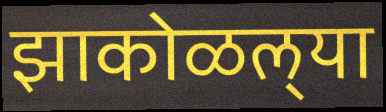
झाकोळल्या